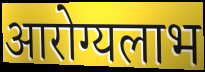
आरोग्यलाभ